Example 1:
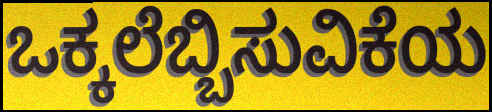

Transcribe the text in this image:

ಒಕ್ಕಲೆಬ್ಬಿಸುವಿಕೆಯ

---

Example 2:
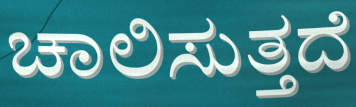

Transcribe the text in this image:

ಚಾಲಿಸುತ್ತದೆ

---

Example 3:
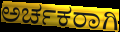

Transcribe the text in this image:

ಅರ್ಚಕರಾಗಿ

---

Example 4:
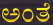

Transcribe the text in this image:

ಅಂತೆ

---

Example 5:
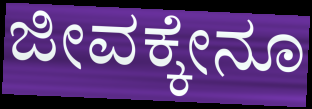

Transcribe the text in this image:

ಜೀವಕ್ಕೇನೂ